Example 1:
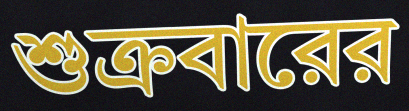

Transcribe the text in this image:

শুক্রবারের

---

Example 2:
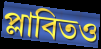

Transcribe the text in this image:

প্লাবিতও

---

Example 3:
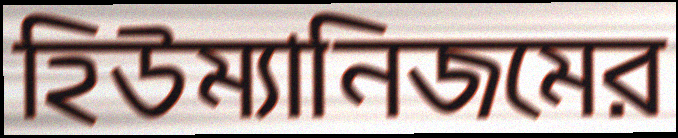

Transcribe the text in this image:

হিউম্যানিজমের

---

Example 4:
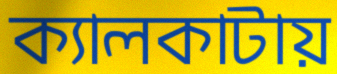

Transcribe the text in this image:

ক্যালকাটায়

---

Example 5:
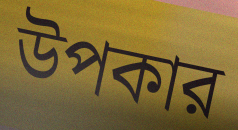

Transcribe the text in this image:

উপকার